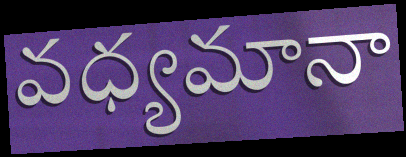
వధ్యమానా